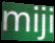
miji